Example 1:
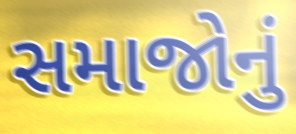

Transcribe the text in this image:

સમાજોનું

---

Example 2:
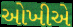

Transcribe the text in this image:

ઓખીએ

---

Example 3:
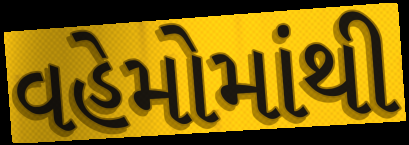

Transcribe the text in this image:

વહેમોમાંથી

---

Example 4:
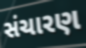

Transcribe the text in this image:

સંચારણ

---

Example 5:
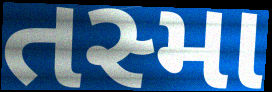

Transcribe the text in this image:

તસ્મા